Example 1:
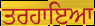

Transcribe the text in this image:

ਤਰਹਾਇਆ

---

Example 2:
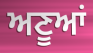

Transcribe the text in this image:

ਅਣੂਆਂ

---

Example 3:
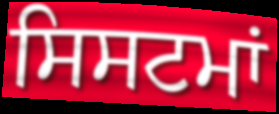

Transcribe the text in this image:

ਸਿਸਟਮਾਂ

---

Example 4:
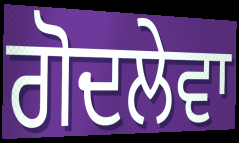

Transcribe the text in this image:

ਗੋਦਲੇਵਾ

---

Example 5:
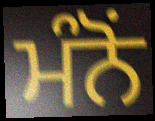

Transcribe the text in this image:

ਮੰਨੋਂ